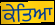
ਕੇਤਿਆ